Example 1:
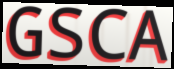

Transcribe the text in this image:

GSCA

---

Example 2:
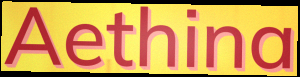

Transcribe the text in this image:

Aethina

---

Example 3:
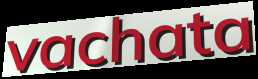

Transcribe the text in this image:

vachata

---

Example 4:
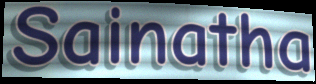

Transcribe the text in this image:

Sainatha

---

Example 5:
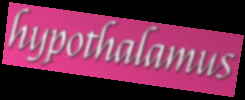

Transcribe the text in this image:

hypothalamus